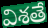
విశతే